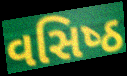
વસિષ્‍ઠ